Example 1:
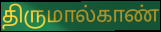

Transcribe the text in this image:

திருமால்காண்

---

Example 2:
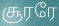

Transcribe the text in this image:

சூரரே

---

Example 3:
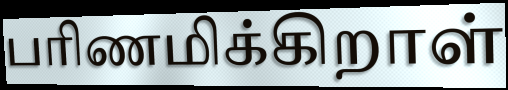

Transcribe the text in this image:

பரிணமிக்கிறாள்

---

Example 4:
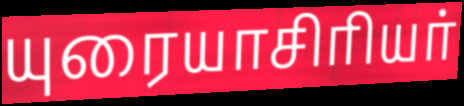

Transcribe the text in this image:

யுரையாசிரியர்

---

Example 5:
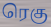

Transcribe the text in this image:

ரெகு